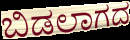
ಬಿಡಲಾಗದ